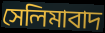
সেলিমাবাদ